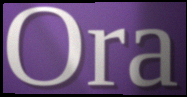
Ora